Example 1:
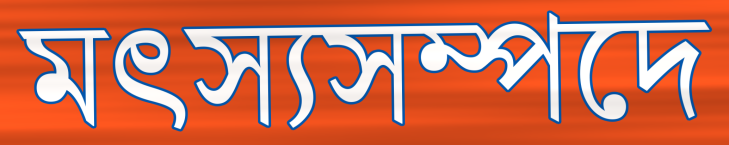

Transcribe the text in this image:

মৎস্যসম্পদে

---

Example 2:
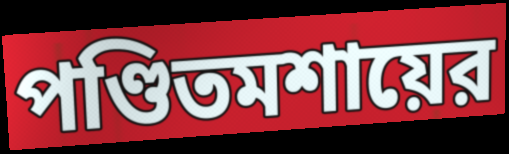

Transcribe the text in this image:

পণ্ডিতমশায়ের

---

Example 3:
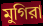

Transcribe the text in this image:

মুগিরা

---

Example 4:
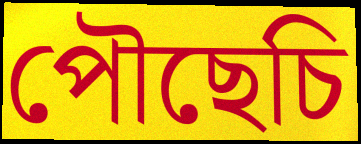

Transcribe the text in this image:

পৌছেচি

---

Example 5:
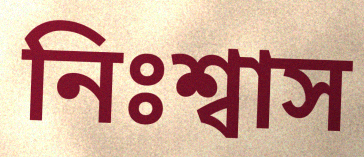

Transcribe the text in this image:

নিঃশ্বাস